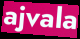
ajvala